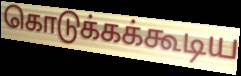
கொடுக்கக்கூடிய